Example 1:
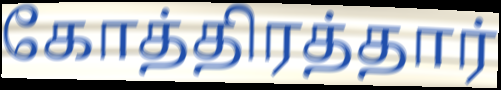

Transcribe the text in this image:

கோத்திரத்தார்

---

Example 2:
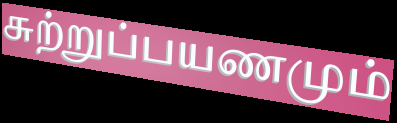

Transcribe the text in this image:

சுற்றுப்பயணமும்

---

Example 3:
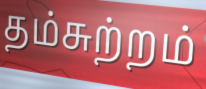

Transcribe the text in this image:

தம்சுற்றம்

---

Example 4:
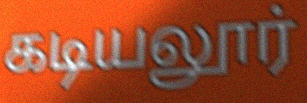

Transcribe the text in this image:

கடியலூர்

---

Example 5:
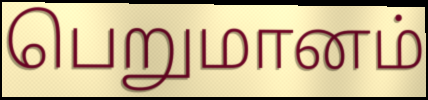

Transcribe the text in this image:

பெறுமானம்